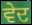
ਵੇਦ